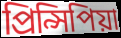
প্ৰিন্সিপিয়া